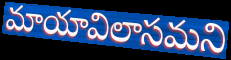
మాయావిలాసమని